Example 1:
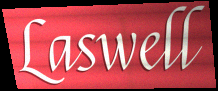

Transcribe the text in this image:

Laswell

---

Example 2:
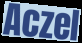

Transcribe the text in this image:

Aczel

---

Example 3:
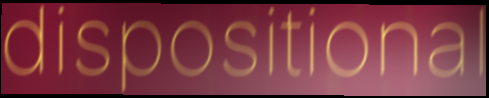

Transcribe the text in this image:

dispositional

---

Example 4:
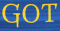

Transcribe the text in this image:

GOT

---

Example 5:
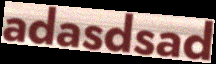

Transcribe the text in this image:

adasdsad